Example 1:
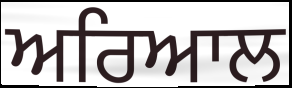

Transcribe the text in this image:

ਅਰਿਆਲ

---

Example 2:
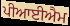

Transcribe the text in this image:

ਪੀਆਈਐਮ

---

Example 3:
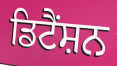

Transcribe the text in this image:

ਡਿਟੈਂਸ਼ਨ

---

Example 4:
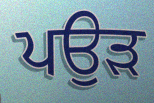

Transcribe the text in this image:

ਪਉੜ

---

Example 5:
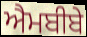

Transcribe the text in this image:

ਐਮਬੀਬੇ